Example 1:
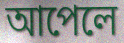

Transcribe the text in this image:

আপেলে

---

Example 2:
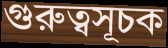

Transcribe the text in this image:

গুরুত্বসূচক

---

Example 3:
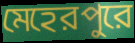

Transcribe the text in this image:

মেহেরপুরে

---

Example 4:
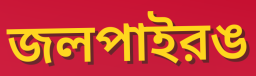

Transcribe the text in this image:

জলপাইরঙ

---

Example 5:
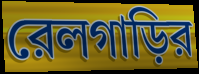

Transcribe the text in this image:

রেলগাড়ির